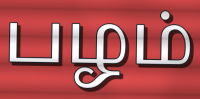
பழம்